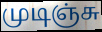
முடிஞ்சு